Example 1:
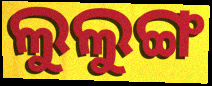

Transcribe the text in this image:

ଲୁଲୁଙ୍ଗ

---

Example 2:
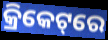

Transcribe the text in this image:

କ୍ରିକେଟ୍‌ରେ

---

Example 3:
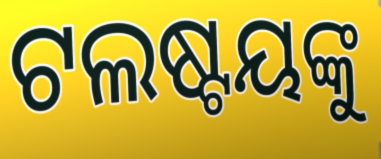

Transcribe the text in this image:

ଟଲଷ୍ଟୟଙ୍କୁ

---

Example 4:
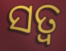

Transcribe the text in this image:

ସତ୍ୱ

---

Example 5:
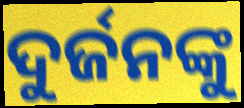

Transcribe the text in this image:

ଦୁର୍ଜନଙ୍କୁ